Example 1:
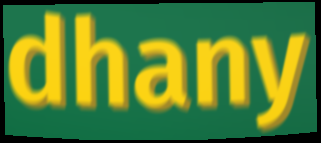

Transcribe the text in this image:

dhany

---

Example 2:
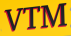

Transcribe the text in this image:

VTM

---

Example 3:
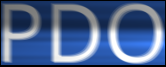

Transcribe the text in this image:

PDO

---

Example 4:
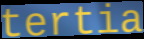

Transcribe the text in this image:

tertia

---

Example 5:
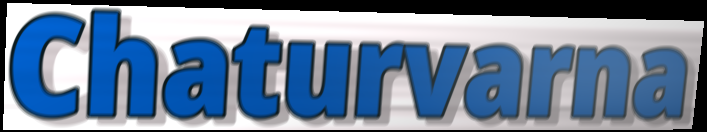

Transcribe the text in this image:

Chaturvarna